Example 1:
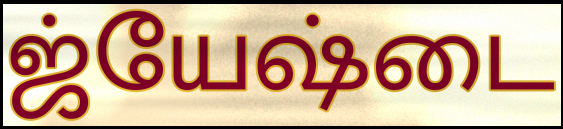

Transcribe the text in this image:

ஜ்யேஷ்டை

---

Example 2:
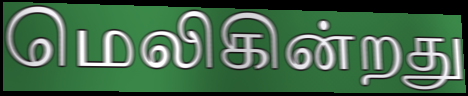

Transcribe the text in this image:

மெலிகின்றது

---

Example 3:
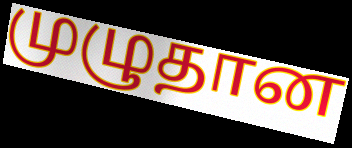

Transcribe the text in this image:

முழுதான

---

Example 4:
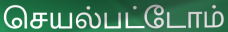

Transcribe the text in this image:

செயல்பட்டோம்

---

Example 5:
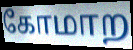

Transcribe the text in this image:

கோமாற